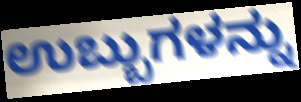
ಉಬ್ಬುಗಳನ್ನು